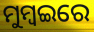
ମୁମ୍ବଇରେ